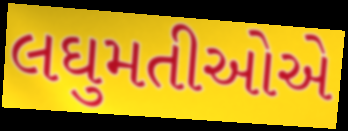
લઘુમતીઓએ